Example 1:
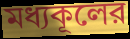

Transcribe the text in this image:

মধ্যকূলের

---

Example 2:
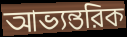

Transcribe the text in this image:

আভ্যন্তরিক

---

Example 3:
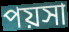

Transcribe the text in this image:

পয়সা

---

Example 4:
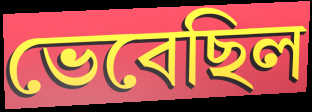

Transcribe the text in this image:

ভেবেছিল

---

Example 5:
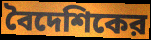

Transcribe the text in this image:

বৈদেশিকের